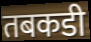
तबकडी